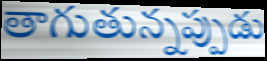
తాగుతున్నప్పుడు